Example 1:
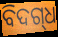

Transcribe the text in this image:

ବିଦଗ୍‌ଧ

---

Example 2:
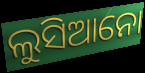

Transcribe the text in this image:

ଲୁସିଆନୋ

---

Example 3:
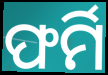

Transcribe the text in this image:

ଫର୍ମି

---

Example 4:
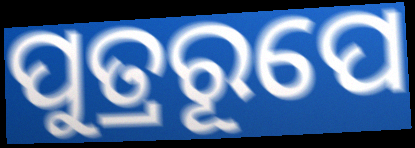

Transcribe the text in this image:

ପୁତ୍ରରୂପେ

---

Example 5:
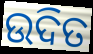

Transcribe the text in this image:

ଉଦିତ